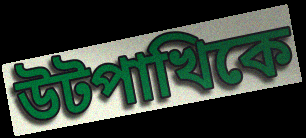
উটপাখিকে